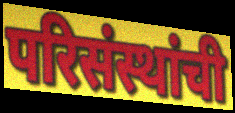
परिसंस्थांची